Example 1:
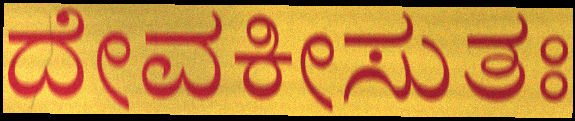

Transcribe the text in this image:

ದೇವಕೀಸುತಃ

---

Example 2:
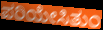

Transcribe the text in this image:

ಪರಿಯೇಸಿತುಂ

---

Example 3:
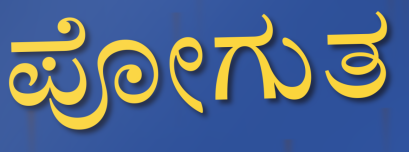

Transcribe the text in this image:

ಪೋಗುತ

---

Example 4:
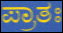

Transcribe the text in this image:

ಪ್ರಾತಃ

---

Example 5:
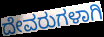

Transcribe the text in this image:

ದೇವರುಗಳಾಗಿ